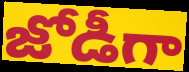
జోడీగా